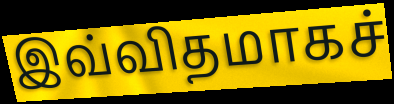
இவ்விதமாகச்